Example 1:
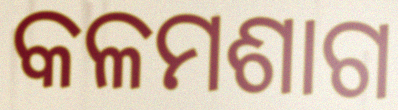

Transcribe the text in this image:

କଳମଶାଗ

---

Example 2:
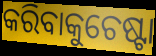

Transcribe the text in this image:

କରିବାକୁଚେଷ୍ଟା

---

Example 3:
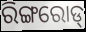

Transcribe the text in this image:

ରିଙ୍ଗରୋଡ୍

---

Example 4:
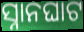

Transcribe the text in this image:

ସ୍ନାନଘାଟ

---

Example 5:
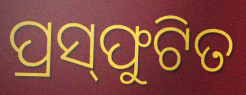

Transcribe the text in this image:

ପ୍ରସ୍‌ଫୁଟିତ